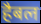
हैबल